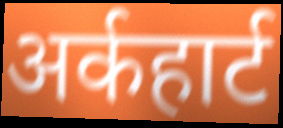
अर्कहार्ट